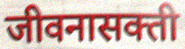
जीवनासक्ती